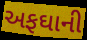
અફઘાની